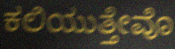
ಕಲಿಯುತ್ತೇವೊ